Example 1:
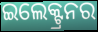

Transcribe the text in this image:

ଇଲେକ୍ଟ୍ରନର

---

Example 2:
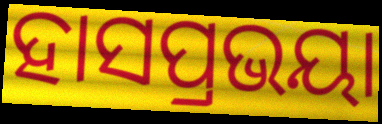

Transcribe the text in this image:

ହାସପ୍ରଭୟା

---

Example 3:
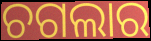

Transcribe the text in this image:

ଚଗଲାର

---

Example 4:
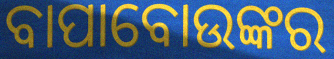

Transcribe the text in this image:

ବାପାବୋଉଙ୍କର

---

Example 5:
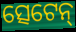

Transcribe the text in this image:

ତ୍ସେଟେନ୍